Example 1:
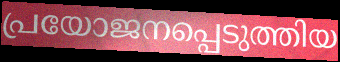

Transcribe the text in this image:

പ്രയോജനപ്പെടുത്തിയ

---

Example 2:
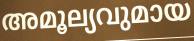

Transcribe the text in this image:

അമൂല്യവുമായ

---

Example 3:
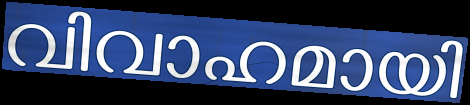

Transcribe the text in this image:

വിവാഹമായി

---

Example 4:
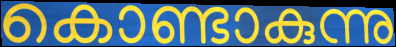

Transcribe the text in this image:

കൊണ്ടാകുന്നു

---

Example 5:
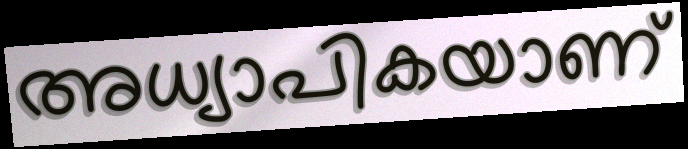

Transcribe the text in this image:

അധ്യാപികയാണ്